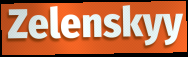
Zelenskyy